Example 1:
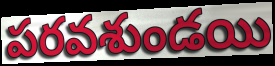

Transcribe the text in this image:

పరవశుండయి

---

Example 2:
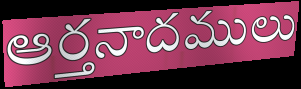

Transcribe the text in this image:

ఆర్తనాదములు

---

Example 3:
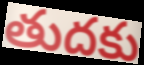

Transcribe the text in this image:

తుదకు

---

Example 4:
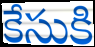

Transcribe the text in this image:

కేసుకి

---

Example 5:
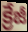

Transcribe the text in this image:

క్రేజీ